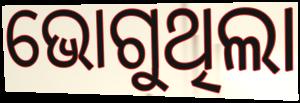
ଭୋଗୁଥିଲା